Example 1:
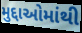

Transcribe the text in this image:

મુદ્દાઓમાંથી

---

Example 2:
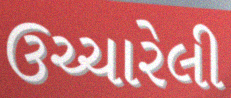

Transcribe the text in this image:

ઉચ્ચારેલી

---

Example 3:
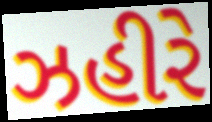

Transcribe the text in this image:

ઝહીરે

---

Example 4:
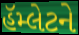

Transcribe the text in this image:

હૅમ્લેટને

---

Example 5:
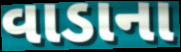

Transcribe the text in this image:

વાડાના